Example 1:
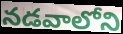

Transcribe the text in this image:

నడవాలోని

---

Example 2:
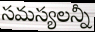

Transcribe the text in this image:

సమస్యలన్నీ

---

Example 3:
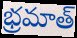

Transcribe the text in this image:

భ్రమాత్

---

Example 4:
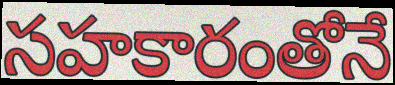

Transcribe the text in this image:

సహకారంతోనే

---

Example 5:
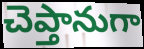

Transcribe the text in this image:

చెప్తానుగా